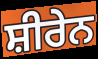
ਸ਼ੀਰੇਨ